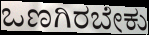
ಒಣಗಿರಬೇಕು